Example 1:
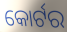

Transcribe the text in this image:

କୋର୍ଟର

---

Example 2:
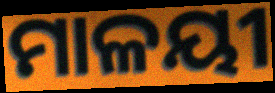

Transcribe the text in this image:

ମାଳୟୀ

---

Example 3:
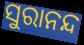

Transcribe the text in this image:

ସୁରାନନ୍ଦ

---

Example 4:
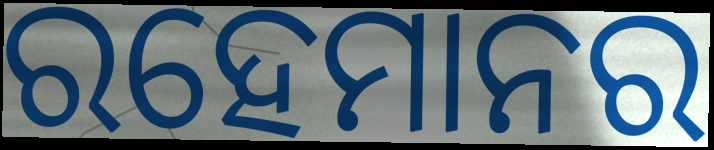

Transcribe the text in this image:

ରହେମାନର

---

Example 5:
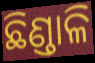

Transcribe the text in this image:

ଛିଣ୍ଡାଳି